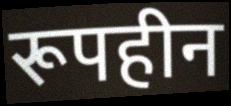
रूपहीन